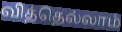
வித்தெல்லாம்